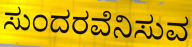
ಸುಂದರವೆನಿಸುವ